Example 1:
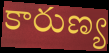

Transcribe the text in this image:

కారుణ్య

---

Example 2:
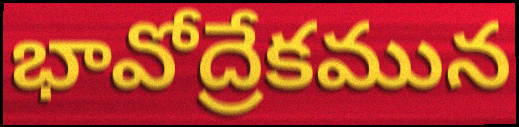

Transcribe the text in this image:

భావోద్రేకమున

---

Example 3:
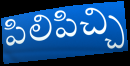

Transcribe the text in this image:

పిలిపిచ్చి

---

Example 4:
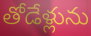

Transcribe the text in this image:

తోడేళ్లును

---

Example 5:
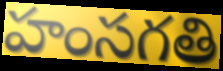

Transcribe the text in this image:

హంసగతి